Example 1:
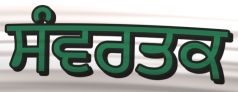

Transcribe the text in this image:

ਸੰਵਰਤਕ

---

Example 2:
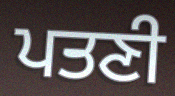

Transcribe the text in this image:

ਪਤਣੀ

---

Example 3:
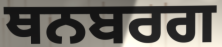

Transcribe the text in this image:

ਥਨਬਰਗ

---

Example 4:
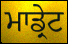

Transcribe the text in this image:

ਮਾਡ੍ਰੇਟ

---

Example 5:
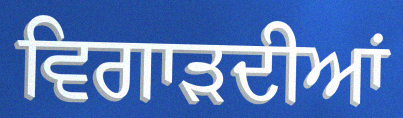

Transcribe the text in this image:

ਵਿਗਾੜਦੀਆਂ